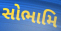
સોભામિ